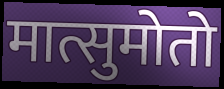
मात्सुमोतो